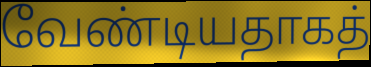
வேண்டியதாகத்